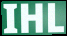
IHL